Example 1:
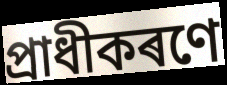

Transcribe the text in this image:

প্ৰাধীকৰণে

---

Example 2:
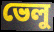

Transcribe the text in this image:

ভেলু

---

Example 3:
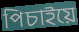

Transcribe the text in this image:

পিচাইয়ে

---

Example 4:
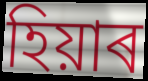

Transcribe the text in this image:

হিয়াৰ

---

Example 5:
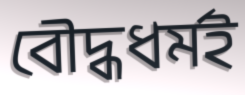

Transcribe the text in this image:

বৌদ্ধধৰ্মই